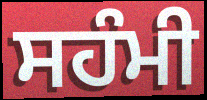
ਸਹੰਮੀ